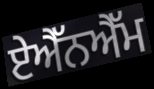
ਏਐੱਨਐੱਮ